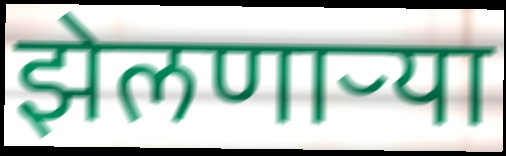
झेलणाऱ्या